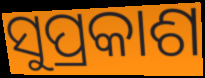
ସୁପ୍ରକାଶ